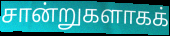
சான்றுகளாகக்